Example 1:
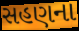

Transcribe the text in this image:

સહણના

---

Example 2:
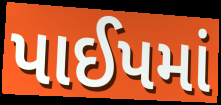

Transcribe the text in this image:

પાઈપમાં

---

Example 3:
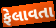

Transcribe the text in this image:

ફેલાવતા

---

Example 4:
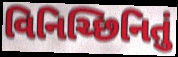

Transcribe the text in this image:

વિનિચ્છિનિતું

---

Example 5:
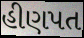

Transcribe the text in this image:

હીણપત